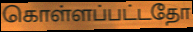
கொள்ளப்பட்டதோ